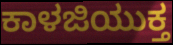
ಕಾಳಜಿಯುಕ್ತ